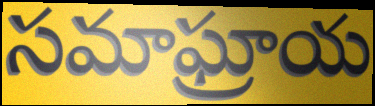
సమాఘ్రాయ